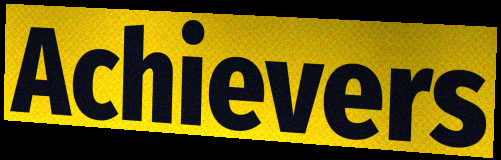
Achievers